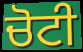
ਚੋਟੀ